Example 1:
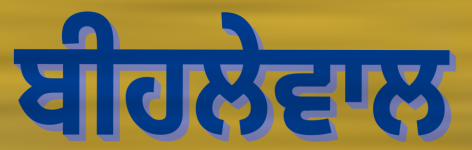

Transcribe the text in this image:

ਬੀਹਲੇਵਾਲ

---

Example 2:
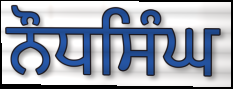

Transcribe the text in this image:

ਨੌਧਸਿੰਘ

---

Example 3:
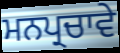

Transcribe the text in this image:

ਮਨਪ੍ਰਚਾਵੇ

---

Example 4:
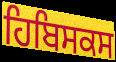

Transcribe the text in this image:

ਹਿਬਿਸਕਸ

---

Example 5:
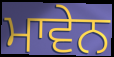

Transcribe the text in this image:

ਮਾਵੇਨ